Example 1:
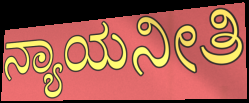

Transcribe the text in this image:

ನ್ಯಾಯನೀತಿ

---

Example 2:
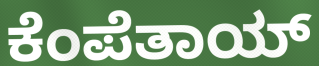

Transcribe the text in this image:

ಕೆಂಪೆತಾಯ್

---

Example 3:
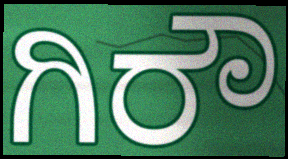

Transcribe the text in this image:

ಗಿರೌ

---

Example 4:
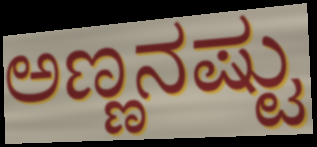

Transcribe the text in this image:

ಅಣ್ಣನಷ್ಟು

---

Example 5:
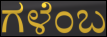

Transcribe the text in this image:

ಗಳೆಂಬ